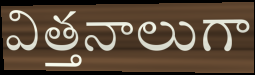
విత్తనాలుగా